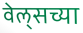
वेल्सच्या